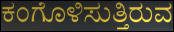
ಕಂಗೊಳಿಸುತ್ತಿರುವ